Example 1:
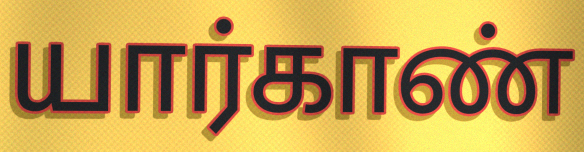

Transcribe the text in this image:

யார்காண்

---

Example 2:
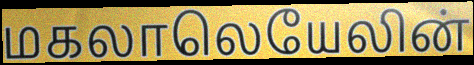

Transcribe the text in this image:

மகலாலெயேலின்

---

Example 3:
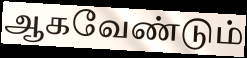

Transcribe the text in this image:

ஆகவேண்டும்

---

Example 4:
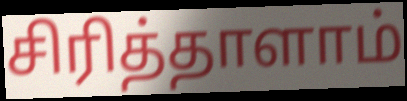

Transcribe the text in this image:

சிரித்தாளாம்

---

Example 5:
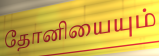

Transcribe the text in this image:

தோனியையும்